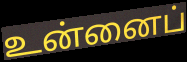
உன்னைப்